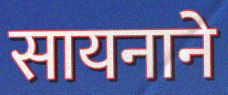
सायनाने